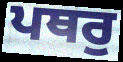
ਪਥਰੁ